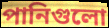
পানিগুলো